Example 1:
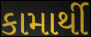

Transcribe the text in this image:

કામાર્થી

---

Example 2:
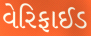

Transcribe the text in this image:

વેરિફાઈડ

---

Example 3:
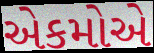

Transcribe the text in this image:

એકમોએ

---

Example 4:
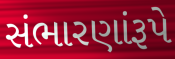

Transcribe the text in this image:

સંભારણાંરૂપે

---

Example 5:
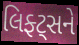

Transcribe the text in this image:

લિફ્ટ્સને